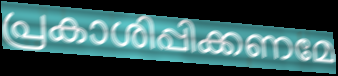
പ്രകാശിപ്പിക്കണമേ